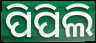
ପିପିଲି